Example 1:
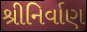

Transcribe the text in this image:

શ્રીનિર્વાણ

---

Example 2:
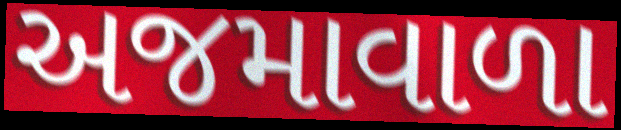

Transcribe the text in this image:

અજમાવાળા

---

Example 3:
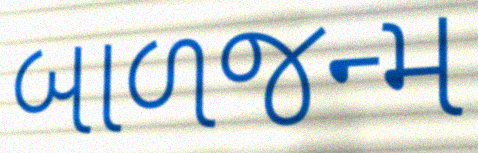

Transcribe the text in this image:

બાળજન્મ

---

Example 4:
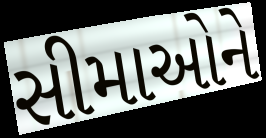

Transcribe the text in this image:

સીમાઓને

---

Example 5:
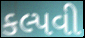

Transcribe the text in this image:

કલ્પવી